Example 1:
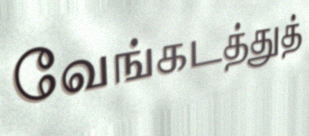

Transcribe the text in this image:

வேங்கடத்துத்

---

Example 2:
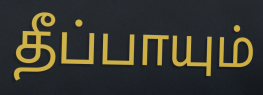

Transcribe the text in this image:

தீப்பாயும்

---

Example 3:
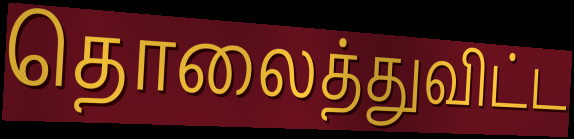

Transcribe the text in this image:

தொலைத்துவிட்ட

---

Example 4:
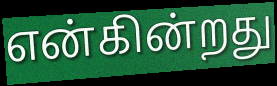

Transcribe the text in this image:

என்கின்றது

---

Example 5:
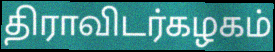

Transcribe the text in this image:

திராவிடர்கழகம்